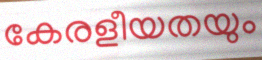
കേരളീയതയും